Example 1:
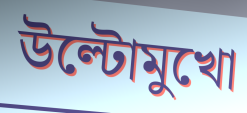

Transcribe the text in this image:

উল্টোমুখো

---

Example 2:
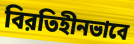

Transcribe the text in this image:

বিরতিহীনভাবে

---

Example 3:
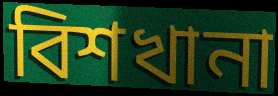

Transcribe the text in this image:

বিশখানা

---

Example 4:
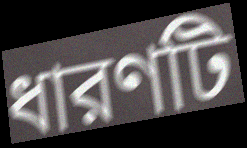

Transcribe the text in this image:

ধারণটি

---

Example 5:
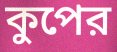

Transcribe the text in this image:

কুপের